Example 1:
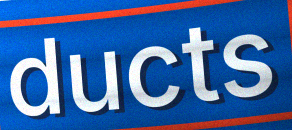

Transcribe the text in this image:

ducts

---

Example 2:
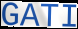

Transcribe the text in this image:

GATI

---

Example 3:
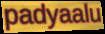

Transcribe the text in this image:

padyaalu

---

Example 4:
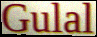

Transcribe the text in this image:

Gulal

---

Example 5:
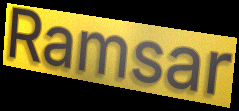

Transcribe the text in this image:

Ramsar